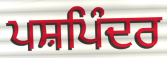
ਪਸ਼ਪਿੰਦਰ